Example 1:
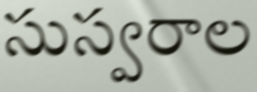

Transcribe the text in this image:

సుస్వరాల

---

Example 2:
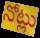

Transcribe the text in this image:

నోట్లు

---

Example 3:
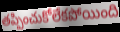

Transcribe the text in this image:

తప్పించుకోలేకపోయింది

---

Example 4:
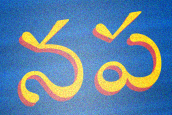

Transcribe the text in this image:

నప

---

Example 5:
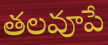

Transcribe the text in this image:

తలవూపే